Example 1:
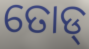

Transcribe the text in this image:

ତୋଡ୍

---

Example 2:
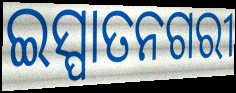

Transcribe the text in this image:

ଇସ୍ପାତନଗରୀ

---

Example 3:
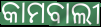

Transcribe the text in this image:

କାମବାଲୀ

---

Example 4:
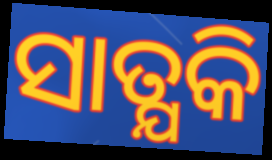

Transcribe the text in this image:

ସାତ୍ଯକି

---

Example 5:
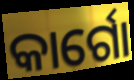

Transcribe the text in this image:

କାର୍ଗୋ